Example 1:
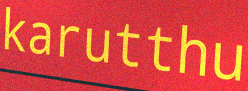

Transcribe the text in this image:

karutthu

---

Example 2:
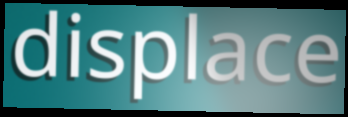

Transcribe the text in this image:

displace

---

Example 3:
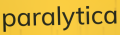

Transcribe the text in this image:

paralytica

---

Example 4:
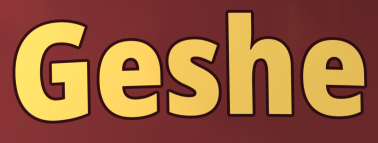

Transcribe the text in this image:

Geshe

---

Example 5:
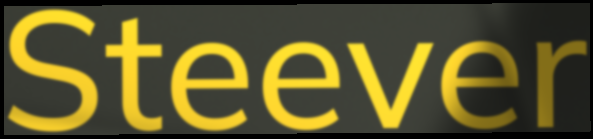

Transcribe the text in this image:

Steever